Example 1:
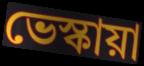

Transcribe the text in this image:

ভেস্কায়া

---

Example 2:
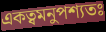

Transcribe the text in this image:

একত্বমনুপশ্যতঃ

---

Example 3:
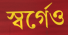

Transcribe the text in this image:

স্বর্গেও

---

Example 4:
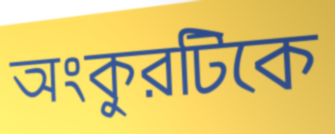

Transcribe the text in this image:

অংকুরটিকে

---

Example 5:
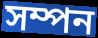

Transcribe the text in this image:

সম্পন